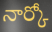
నార్కో